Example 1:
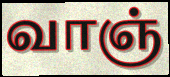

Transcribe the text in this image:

வாஞ்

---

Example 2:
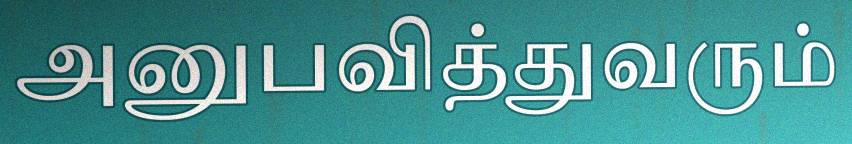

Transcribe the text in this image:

அனுபவித்துவரும்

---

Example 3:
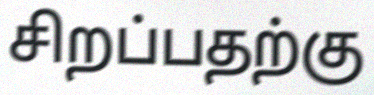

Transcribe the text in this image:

சிறப்பதற்கு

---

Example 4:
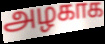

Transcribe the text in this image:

அழகாக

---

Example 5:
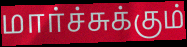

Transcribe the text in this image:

மார்ச்சுக்கும்